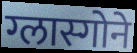
ग्लास्गोने